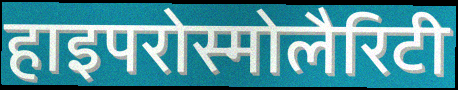
हाइपरोस्मोलैरिटी